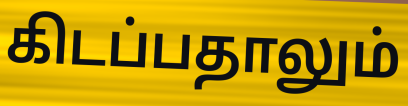
கிடப்பதாலும்